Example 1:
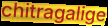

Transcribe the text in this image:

chitragalige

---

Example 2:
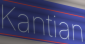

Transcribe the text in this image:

Kantian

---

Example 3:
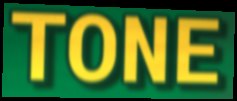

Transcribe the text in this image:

TONE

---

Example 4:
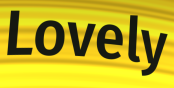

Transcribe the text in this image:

Lovely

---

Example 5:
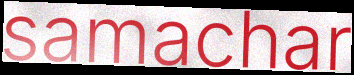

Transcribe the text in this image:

samachar